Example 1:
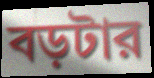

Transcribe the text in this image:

বড়টার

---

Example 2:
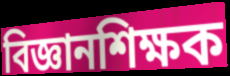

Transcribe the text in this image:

বিজ্ঞানশিক্ষক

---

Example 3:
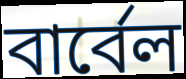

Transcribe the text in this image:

বার্বেল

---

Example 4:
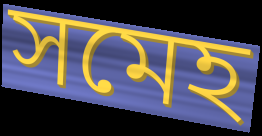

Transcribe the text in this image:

সমেহ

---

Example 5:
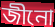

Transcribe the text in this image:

জীনো